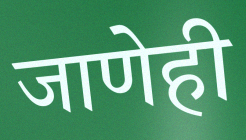
जाणेही